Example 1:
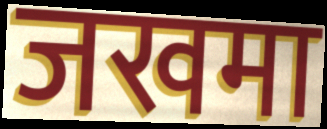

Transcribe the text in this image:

जखमा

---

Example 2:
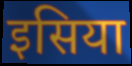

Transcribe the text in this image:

इसिया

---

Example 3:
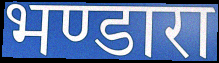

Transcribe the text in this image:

भण्डारा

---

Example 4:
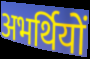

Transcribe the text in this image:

अभर्थियों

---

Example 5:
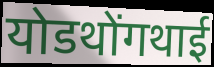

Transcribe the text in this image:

योडथोंगथाई